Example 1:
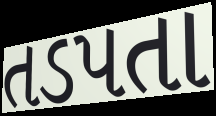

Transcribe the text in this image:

તડપતા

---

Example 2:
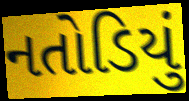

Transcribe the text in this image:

નતોડિયું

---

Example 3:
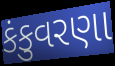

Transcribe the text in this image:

કંકુવરણા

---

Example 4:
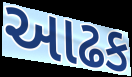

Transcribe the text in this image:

આઢક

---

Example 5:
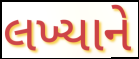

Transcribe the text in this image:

લખ્યાને